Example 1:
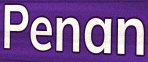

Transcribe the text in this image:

Penan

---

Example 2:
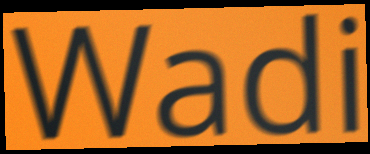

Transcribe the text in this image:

Wadi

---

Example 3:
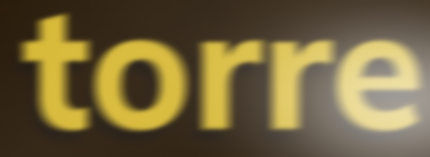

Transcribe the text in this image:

torre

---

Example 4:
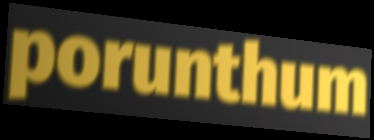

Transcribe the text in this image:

porunthum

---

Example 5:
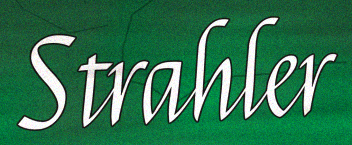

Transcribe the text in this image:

Strahler